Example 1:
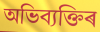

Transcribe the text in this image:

অভিব্যক্তিৰ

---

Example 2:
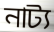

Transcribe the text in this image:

নাট্য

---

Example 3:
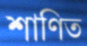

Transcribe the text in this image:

শাণিত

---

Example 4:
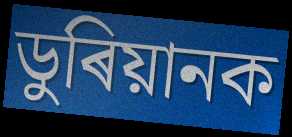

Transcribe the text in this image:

ডুৰিয়ানক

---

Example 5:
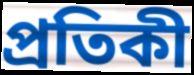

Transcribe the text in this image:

প্ৰতিকী